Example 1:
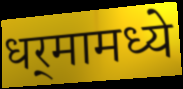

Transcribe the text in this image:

धर्मामध्ये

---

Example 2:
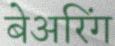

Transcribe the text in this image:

बेअरिंग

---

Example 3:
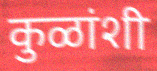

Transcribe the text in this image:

कुळांशी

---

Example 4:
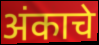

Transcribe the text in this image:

अंकाचे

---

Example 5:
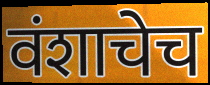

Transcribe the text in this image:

वंशाचेच